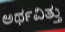
ಅರ್ಥವಿತ್ತು